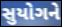
સુયોગને